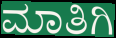
ಮಾತಿಗಿ